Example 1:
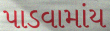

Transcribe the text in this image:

પાડવામાંય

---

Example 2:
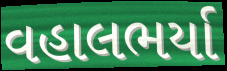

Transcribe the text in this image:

વહાલભર્યા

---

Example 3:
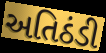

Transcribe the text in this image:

અતિઠંડી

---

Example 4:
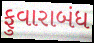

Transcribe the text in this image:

ફુવારાબંધ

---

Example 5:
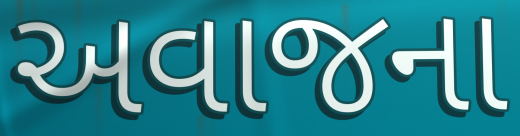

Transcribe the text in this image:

અવાજના